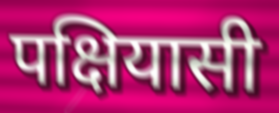
पक्षियासी